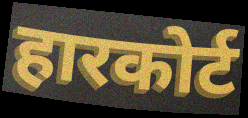
हारकोर्ट